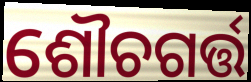
ଶୌଚଗର୍ତ୍ତ